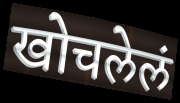
खोचलेलं